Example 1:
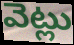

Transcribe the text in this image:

వెట్లు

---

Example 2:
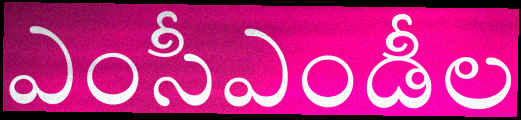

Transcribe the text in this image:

ఎంసీఎండీల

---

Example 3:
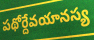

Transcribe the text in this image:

పథోర్దేవయానస్య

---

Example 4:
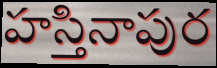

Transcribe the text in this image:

హస్తినాపుర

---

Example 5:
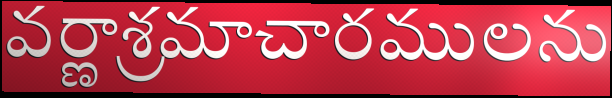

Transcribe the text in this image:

వర్ణాశ్రమాచారములను